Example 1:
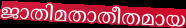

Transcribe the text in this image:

ജാതിമതാതീതമായ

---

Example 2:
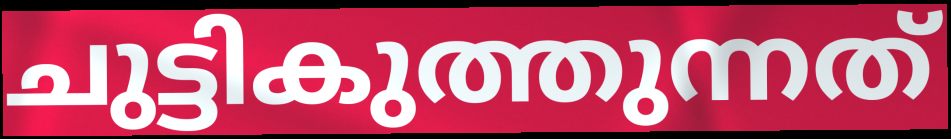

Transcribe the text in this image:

ചുട്ടികുത്തുന്നത്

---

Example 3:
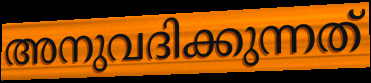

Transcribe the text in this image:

അനുവദിക്കുന്നത്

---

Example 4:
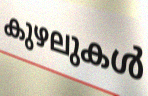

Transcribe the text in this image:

കുഴലുകൾ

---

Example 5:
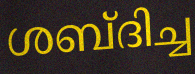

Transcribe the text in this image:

ശബ്ദിച്ച